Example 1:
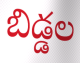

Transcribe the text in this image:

బిడ్డల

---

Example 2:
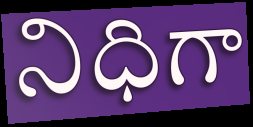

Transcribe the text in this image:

నిధిగా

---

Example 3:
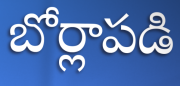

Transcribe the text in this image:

బోర్లాపడి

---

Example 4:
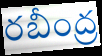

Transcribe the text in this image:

రబీంద్ర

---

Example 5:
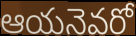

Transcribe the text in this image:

ఆయనెవరో